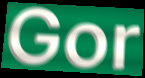
Gor